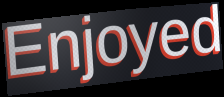
Enjoyed